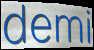
demi